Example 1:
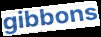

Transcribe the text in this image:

gibbons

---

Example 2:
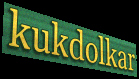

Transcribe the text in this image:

kukdolkar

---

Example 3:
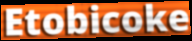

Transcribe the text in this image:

Etobicoke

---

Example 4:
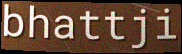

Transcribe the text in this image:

bhattji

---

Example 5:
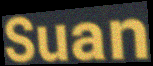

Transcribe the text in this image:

Suan